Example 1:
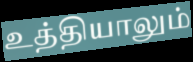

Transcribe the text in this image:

உத்தியாலும்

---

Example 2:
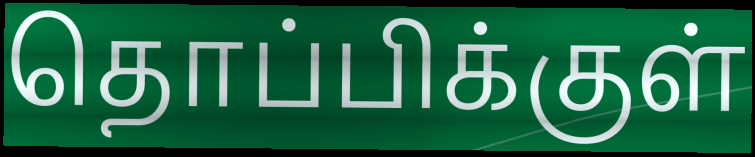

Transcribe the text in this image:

தொப்பிக்குள்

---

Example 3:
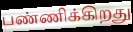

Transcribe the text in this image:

பண்ணிக்கிறது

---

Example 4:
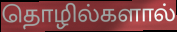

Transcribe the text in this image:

தொழில்களால்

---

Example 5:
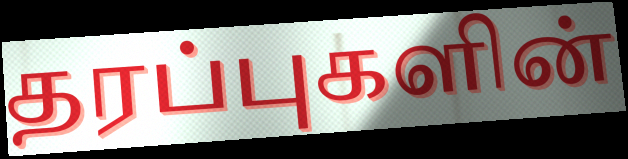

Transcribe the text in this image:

தரப்புகளின்